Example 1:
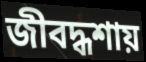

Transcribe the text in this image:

জীবদ্ধশায়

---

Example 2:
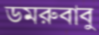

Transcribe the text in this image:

ডমরুবাবু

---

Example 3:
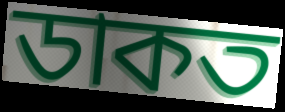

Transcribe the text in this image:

ডাকত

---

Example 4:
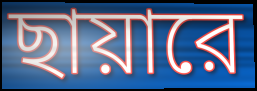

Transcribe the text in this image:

ছায়ারে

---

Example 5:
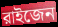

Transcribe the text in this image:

রাইজেন